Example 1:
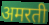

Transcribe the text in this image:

अमरती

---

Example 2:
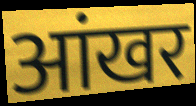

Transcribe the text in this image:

आंखर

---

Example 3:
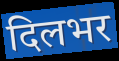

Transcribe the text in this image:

दिलभर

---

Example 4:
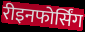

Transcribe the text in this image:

रीइनफोर्सिंग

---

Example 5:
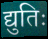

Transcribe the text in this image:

द्युतिः